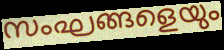
സംഘങ്ങളെയും